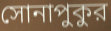
সোনাপুকুর